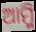
ଆମ୍ମି